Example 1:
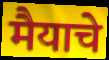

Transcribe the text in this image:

मैयाचे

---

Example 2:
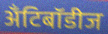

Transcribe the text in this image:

अँटिबॉडीज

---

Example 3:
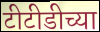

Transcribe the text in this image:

टीटीडीच्या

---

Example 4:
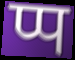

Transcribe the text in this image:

प्प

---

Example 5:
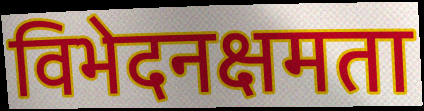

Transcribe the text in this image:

विभेदनक्षमता